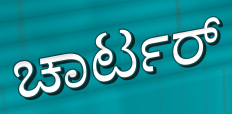
ಚಾರ್ಟರ್